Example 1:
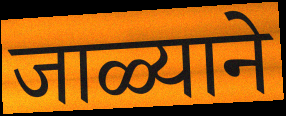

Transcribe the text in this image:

जाळ्याने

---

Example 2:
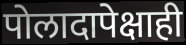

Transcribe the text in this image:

पोलादापेक्षाही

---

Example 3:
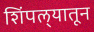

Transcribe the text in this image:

शिंपल्यातून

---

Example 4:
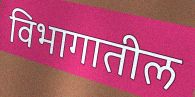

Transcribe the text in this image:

विभागातील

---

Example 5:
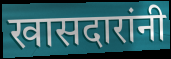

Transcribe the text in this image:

खासदारांनी